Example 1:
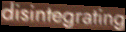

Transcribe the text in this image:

disintegrating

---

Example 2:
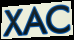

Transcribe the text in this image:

XAC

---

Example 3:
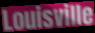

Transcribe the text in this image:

Louisville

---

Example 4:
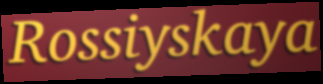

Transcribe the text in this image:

Rossiyskaya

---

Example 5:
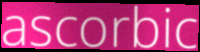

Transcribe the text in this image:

ascorbic